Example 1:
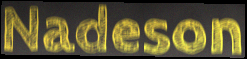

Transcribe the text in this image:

Nadeson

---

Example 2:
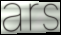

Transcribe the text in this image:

ars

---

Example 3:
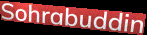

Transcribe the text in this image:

Sohrabuddin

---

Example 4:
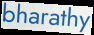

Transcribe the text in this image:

bharathy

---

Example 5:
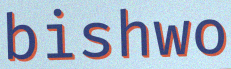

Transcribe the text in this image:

bishwo